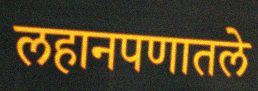
लहानपणातले